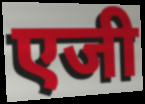
एजी